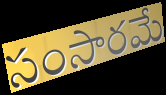
సంసారమే